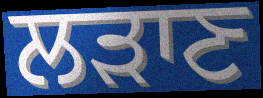
ਲੜਾਣ